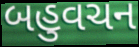
બહુવચન